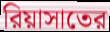
রিয়াসাতের